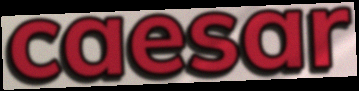
caesar